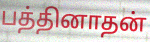
பத்தினாதன்